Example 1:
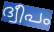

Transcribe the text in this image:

ദ്വീപം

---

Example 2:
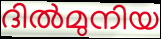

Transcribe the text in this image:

ദിൽമുനിയ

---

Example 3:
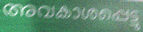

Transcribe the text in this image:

അവകാശപ്പെട്ടു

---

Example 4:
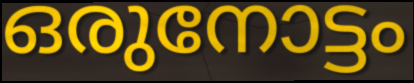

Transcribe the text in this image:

ഒരുനോട്ടം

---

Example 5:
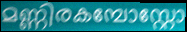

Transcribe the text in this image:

മണ്ണിരകമ്പോസ്റ്റോ